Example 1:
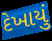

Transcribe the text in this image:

દેખાયું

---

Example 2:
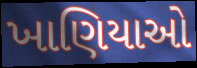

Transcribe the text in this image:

ખાણિયાઓ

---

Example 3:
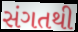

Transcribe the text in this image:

સંગતથી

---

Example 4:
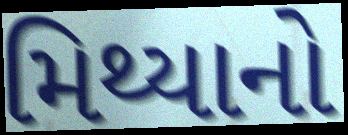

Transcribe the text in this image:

મિથ્યાનો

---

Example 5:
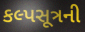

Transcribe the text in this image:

કલ્પસૂત્રની